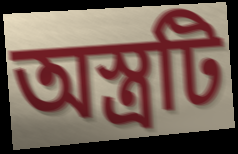
অস্ত্রটি